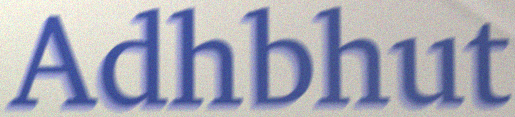
Adhbhut